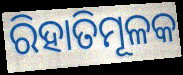
ରିହାତିମୂଳକ